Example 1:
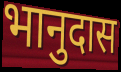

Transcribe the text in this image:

भानुदास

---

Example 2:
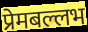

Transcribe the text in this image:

प्रेमबल्लभ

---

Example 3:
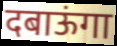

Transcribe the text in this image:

दबाऊंगा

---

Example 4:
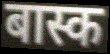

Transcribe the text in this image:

बास्क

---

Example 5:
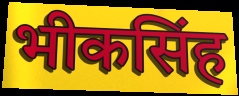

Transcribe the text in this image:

भीकसिंह